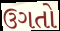
ઉગતો